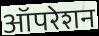
ऑपरेशन